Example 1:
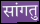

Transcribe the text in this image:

सांगतु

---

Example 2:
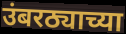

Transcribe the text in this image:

उंबरठ्याच्या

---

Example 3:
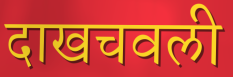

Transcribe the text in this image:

दाखचवली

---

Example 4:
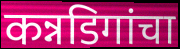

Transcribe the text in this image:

कन्नडिगांचा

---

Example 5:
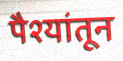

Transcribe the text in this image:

पैश्यांतून